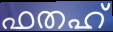
ഫതഹ്